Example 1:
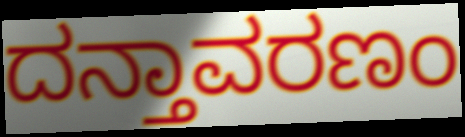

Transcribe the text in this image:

ದನ್ತಾವರಣಂ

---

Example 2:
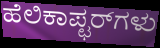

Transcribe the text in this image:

ಹೆಲಿಕಾಪ್ಟರ್‌ಗಳು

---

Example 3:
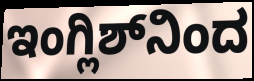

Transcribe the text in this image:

ಇಂಗ್ಲಿಶ್‌ನಿಂದ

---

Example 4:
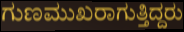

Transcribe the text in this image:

ಗುಣಮುಖರಾಗುತ್ತಿದ್ದರು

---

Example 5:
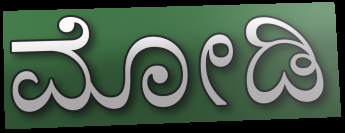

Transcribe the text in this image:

ಮೋಡಿ